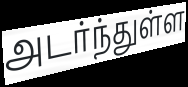
அடர்ந்துள்ள